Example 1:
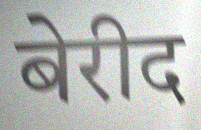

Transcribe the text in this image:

बेरीद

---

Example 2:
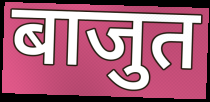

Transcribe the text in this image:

बाजुत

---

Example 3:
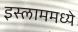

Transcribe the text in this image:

इस्लाममध्ये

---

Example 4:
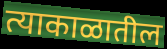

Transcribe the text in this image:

त्याकाळातील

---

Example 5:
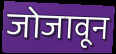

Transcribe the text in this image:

जोजावून